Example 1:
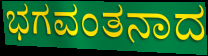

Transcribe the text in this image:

ಭಗವಂತನಾದ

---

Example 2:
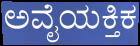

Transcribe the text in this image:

ಅವೈಯಕ್ತಿಕ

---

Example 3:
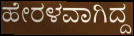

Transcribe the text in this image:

ಹೇರಳವಾಗಿದ್ದ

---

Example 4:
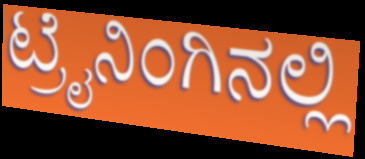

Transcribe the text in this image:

ಟ್ರೈನಿಂಗಿನಲ್ಲಿ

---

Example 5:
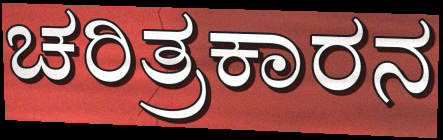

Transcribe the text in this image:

ಚರಿತ್ರಕಾರನ